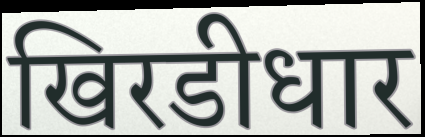
खिरडीधार